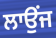
ਲਾਉਂਜ